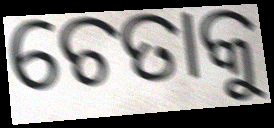
ଚେତାକୁ